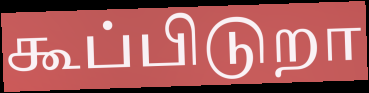
கூப்பிடுறா